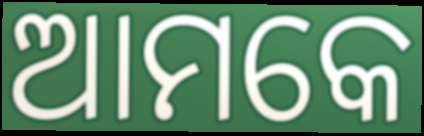
ଆମକେ